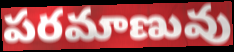
పరమాణువు